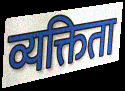
व्यक्तिता